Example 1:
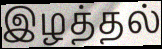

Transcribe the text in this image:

இழத்தல்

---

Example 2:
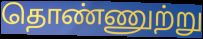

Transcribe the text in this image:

தொண்ணுற்று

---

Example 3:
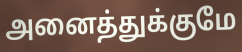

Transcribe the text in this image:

அனைத்துக்குமே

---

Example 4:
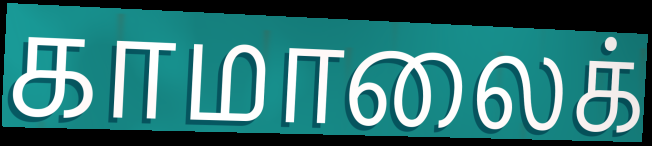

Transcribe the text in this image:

காமாலைக்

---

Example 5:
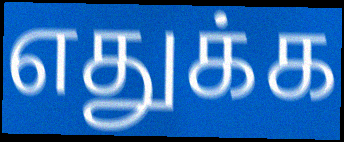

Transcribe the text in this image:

எதுக்க